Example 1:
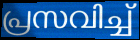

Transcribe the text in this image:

പ്രസവിച്ച്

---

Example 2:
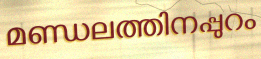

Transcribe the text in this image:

മണ്ഡലത്തിനപ്പുറം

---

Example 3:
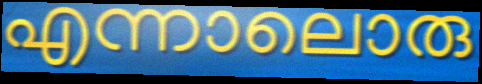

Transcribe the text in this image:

എന്നാലൊരു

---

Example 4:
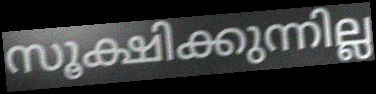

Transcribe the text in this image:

സൂക്ഷിക്കുന്നില്ല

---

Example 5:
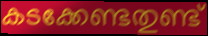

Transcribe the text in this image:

കടക്കേണ്ടതുണ്ട്